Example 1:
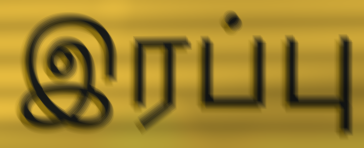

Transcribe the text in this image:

இரப்பு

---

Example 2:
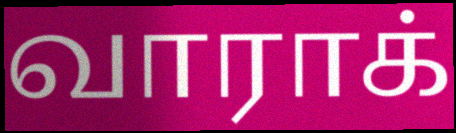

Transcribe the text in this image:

வாராக்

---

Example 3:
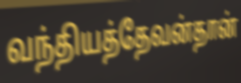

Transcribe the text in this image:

வந்தியத்தேவன்தான்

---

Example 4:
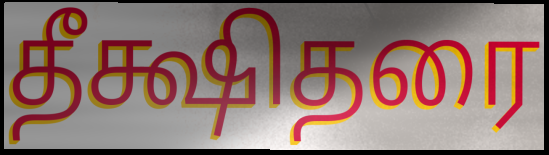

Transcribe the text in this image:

தீக்ஷிதரை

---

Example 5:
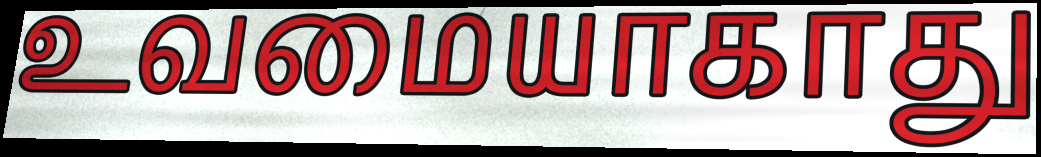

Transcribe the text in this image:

உவமையாகாது